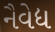
નૈવેદ્ય